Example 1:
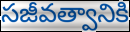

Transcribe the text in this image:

సజీవత్వానికి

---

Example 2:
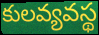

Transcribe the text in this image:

కులవ్యవస్థ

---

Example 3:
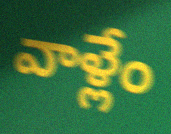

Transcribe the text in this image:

వాళ్లేం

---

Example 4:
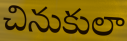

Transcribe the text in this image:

చినుకులా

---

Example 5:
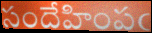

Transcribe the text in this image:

సందేహింపఁ